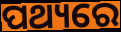
ପଥ୍ୟରେ